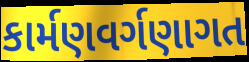
કાર્મણવર્ગણાગત